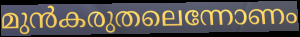
മുൻകരുതലെന്നോണം